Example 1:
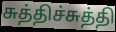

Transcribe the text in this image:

சுத்திச்சுத்தி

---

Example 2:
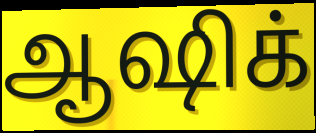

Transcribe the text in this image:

ஆஷிக்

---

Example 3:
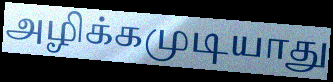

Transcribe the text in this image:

அழிக்கமுடியாது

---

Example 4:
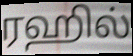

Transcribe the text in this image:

ரஹில்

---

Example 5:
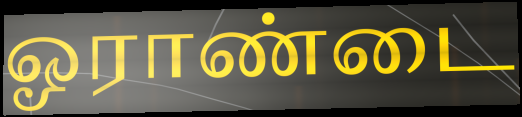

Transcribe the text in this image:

ஓராண்டை